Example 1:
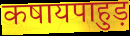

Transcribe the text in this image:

कषायपाहुड़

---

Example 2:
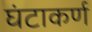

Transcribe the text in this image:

घंटाकर्ण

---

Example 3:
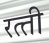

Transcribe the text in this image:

रत्‍ती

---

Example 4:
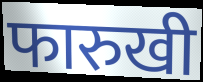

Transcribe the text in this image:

फारुखी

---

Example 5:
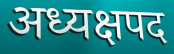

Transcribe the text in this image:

अध्यक्षपद